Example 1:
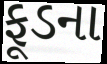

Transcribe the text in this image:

ફૂડના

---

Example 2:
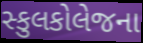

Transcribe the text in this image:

સ્કુલકોલેજના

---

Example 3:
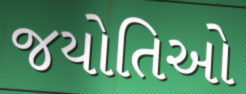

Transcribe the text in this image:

જયોતિઓ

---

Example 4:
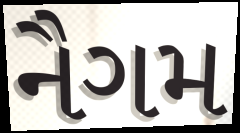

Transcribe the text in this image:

નૈગમ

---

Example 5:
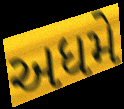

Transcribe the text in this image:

અધમે